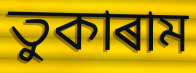
তুকাৰাম